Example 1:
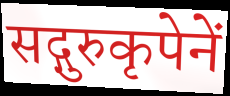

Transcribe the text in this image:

सद्गुरुकृपेनें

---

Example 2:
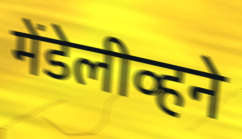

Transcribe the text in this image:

मेंडेलीव्हने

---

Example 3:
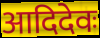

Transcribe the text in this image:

आदिदेवः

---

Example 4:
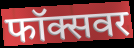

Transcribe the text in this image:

फॉक्सवर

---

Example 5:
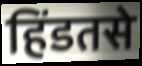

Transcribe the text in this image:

हिंडतसे